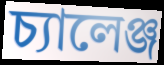
চ্যালেঞ্জ